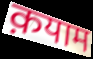
क़याम